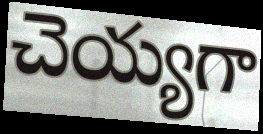
చెయ్యగా